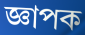
জ্ঞাপক